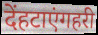
देंहटाएंगहरी